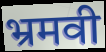
भ्रमवी